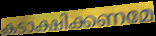
കടാക്ഷിക്കണമേ